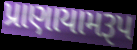
પ્રાણાયામરૂપ